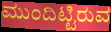
ಮುಂದಿಟ್ಟಿರುವ